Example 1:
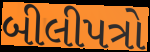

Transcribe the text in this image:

બીલીપત્રો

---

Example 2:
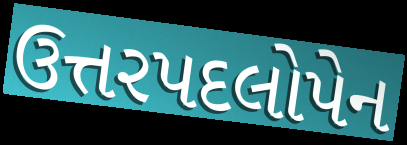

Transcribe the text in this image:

ઉત્તરપદલોપેન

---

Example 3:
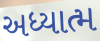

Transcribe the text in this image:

અધ્યાત્મ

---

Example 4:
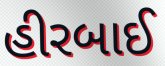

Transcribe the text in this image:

હીરબાઈ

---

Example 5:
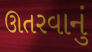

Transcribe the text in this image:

ઊતરવાનું